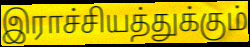
இராச்சியத்துக்கும்